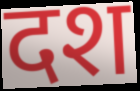
दश